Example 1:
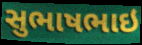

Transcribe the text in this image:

સુભાષભાઇ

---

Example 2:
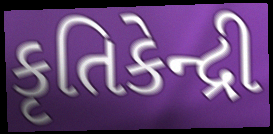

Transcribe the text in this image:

કૃતિકેન્દ્રી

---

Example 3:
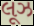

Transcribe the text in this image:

લૂઝ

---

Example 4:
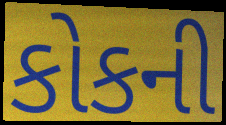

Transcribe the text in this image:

કોકની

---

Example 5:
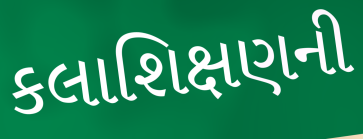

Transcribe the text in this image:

કલાશિક્ષણની